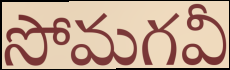
సోమగవీ